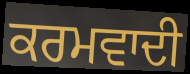
ਕਰਮਵਾਦੀ